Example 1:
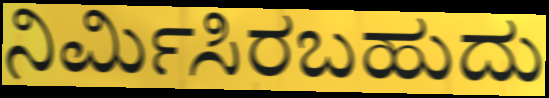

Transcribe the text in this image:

ನಿರ್ಮಿಸಿರಬಹುದು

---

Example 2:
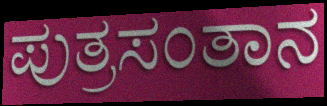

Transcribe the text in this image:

ಪುತ್ರಸಂತಾನ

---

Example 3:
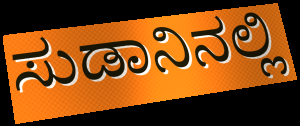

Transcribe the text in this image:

ಸುಡಾನಿನಲ್ಲಿ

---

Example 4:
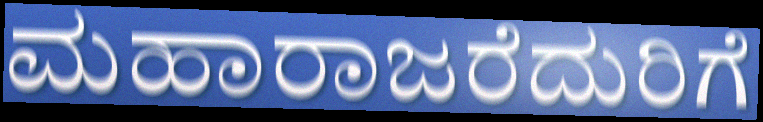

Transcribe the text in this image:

ಮಹಾರಾಜರೆದುರಿಗೆ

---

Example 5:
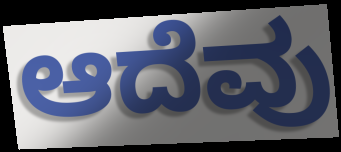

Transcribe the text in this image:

ಆದೆವು